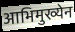
आभिमुख्येन